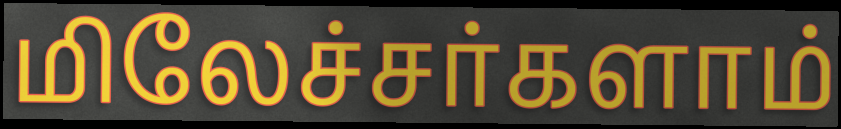
மிலேச்சர்களாம்